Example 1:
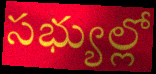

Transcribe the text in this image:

సభ్యుల్లో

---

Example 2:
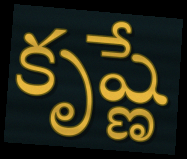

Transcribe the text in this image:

కృష్ణే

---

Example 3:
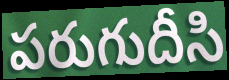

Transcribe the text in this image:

పరుగుదీసి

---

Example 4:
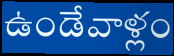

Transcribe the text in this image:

ఉండేవాళ్లం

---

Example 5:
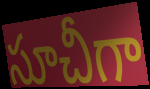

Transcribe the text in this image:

సూచీగా